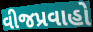
વીજપ્રવાહો